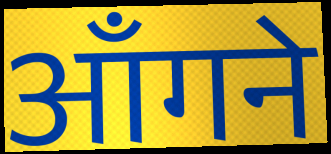
आँगने